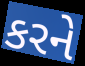
કરને